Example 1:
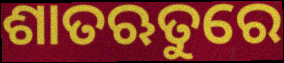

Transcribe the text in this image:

ଶାତଋତୁରେ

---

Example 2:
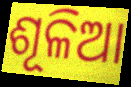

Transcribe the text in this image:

ଶୂଳିଆ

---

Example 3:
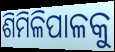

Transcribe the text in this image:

ଶିମିଳିପାଳକୁ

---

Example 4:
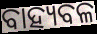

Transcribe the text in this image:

ବାହ୍ୟବଳ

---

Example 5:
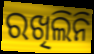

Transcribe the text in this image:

ରଖିଲିନି